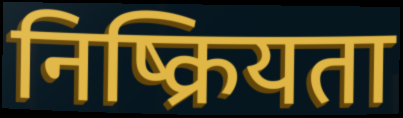
निष्क्रियता